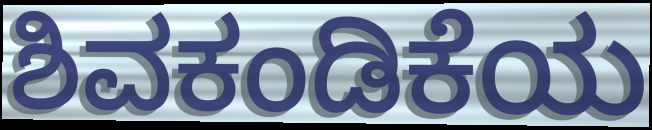
ಶಿವಕಂಡಿಕೆಯ